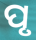
ପୃ